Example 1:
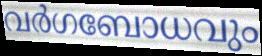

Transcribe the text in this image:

വർഗബോധവും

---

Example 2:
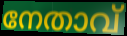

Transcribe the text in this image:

നേതാവ്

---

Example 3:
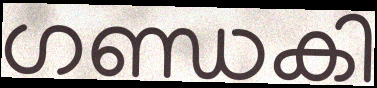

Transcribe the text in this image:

ഗണ്ഡകി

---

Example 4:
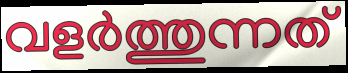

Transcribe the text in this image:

വളർത്തുന്നത്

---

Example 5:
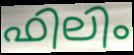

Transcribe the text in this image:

ഫിലിം